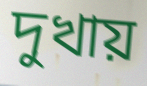
দুখায়